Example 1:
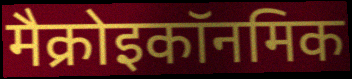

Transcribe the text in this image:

मैक्रोइकॉनमिक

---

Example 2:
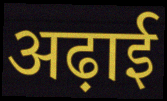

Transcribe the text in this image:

अढ़ाई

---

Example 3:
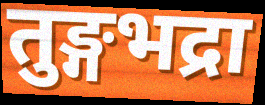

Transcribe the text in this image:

तुङ्गभद्रा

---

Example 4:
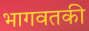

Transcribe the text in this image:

भागवतकी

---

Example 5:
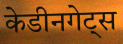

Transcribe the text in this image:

केडीनगेट्स